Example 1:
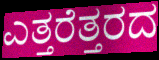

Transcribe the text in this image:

ಎತ್ತರೆತ್ತರದ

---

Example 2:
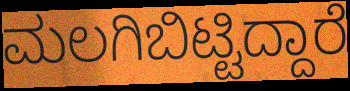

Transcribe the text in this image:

ಮಲಗಿಬಿಟ್ಟಿದ್ದಾರೆ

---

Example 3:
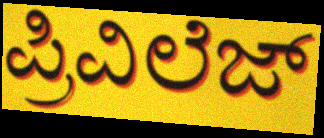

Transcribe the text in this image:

ಪ್ರಿವಿಲೆಜ್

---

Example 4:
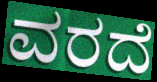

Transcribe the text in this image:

ವರದೆ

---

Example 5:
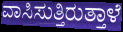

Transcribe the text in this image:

ವಾಸಿಸುತ್ತಿರುತ್ತಾಳೆ